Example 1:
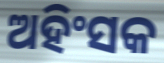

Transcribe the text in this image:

ଅହିଂସକ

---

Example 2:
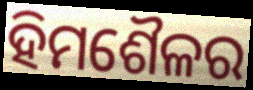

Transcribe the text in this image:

ହିମଶୈଳର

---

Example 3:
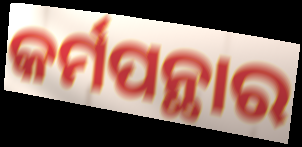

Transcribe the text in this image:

କର୍ମପନ୍ଥାର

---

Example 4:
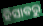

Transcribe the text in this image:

ହିସାବରୁ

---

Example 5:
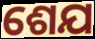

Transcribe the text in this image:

ଶେଯ